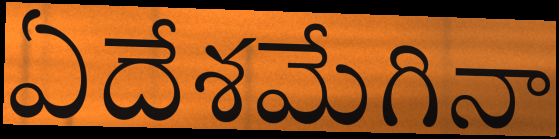
ఏదేశమేగినా